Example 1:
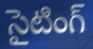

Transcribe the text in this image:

సైటింగ్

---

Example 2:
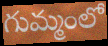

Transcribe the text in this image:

గుమ్మంలో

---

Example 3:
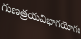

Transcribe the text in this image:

గుణత్రయవిభాగయోగః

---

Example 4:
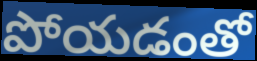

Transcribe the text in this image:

పోయడంతో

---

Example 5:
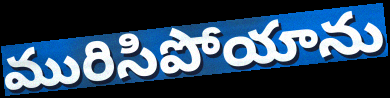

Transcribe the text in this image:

మురిసిపోయాను